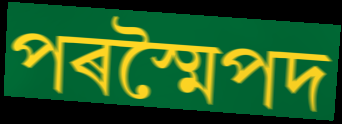
পৰস্মৈপদ